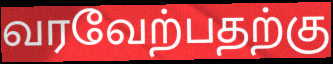
வரவேற்பதற்கு